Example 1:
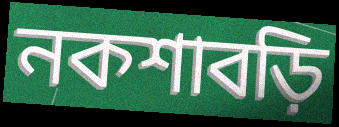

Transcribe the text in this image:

নকশাবড়ি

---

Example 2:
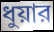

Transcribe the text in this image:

ধুয়ার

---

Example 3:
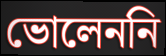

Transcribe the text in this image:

ভোলেননি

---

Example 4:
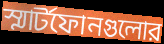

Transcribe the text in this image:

স্মার্টফোনগুলোর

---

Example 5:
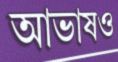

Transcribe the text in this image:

আভাষও